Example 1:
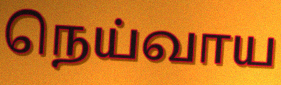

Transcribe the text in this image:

நெய்வாய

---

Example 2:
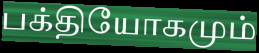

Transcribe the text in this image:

பக்தியோகமும்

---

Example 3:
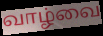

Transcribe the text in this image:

வாழ்வை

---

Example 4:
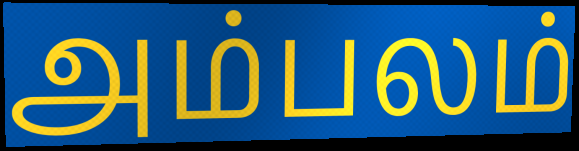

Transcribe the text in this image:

அம்பலம்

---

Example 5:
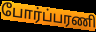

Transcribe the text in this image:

போர்ப்பரணி